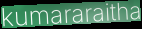
kumararaitha